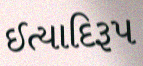
ઈત્યાદિરૂપ